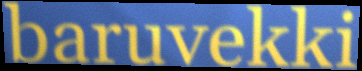
baruvekki